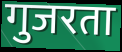
गुजरता